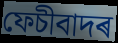
ফেচীবাদৰ